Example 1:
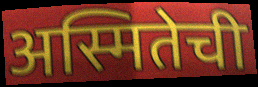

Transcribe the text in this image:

अस्मितेची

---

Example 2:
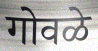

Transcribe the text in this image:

गोवळे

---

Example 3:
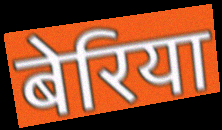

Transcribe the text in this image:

बेरिया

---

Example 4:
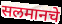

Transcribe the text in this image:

सलमानचे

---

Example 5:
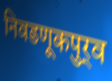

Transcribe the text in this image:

निवडणूकपुर्व